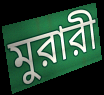
মুরারী